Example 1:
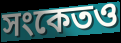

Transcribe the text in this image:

সংকেতও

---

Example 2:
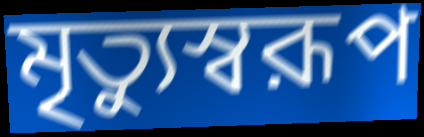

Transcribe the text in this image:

মৃত্যুস্বরূপ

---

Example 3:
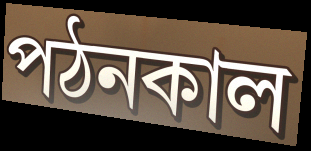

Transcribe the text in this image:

পঠনকাল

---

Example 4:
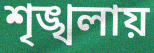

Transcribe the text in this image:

শৃঙ্খলায়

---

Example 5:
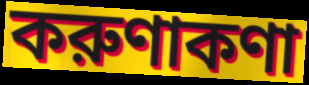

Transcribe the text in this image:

করুণাকণা